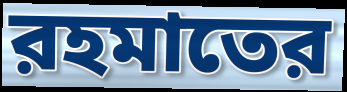
রহমাতের